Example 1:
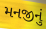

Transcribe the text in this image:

મનજીનું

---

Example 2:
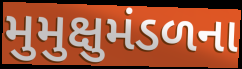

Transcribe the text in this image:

મુમુક્ષુમંડળના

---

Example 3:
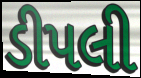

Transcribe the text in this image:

ડીપલી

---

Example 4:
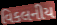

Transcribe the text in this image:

વિકલનીય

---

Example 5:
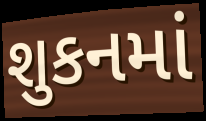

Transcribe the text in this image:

શુકનમાં